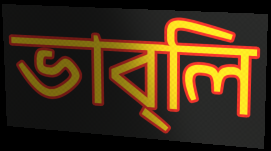
ভাব্‌লি